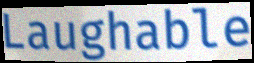
Laughable